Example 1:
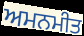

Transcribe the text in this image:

ਅਮਨਮੀਤ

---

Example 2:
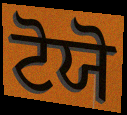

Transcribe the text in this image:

ਟੋਯੋ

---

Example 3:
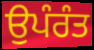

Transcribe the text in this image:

ਉਪੰਰੰਤ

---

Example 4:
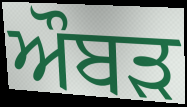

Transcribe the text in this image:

ਔਬੜ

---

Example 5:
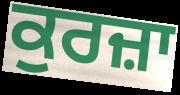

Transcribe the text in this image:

ਕੁਰਜ਼ਾ